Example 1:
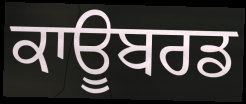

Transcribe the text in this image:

ਕਾਊਬਰਡ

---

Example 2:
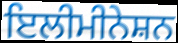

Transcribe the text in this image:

ਇਲੀਮੀਨੇਸ਼ਨ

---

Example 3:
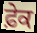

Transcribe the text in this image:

ਫ਼ੇਕ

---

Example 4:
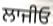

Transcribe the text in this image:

ਲਾਜੀਓ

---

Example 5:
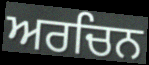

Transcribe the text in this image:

ਅਰਚਿਨ